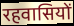
रहवासियों